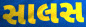
સાલસ